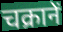
चक्रानें